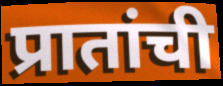
प्रातांची